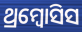
ଥ୍ରମ୍ବୋସିସ